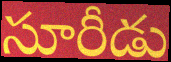
సూరీడు